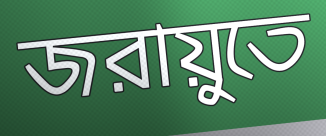
জরায়ুতে